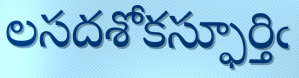
లసదశోకస్ఫూర్తిఁ